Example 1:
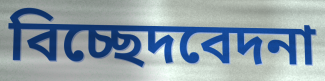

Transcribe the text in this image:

বিচ্ছেদবেদনা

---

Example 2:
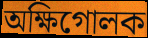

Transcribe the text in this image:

অক্ষিগোলক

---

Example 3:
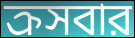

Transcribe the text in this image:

ক্রসবার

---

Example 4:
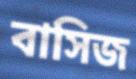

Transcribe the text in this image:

বাসিজ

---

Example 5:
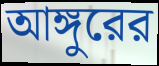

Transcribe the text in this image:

আঙ্গুরের